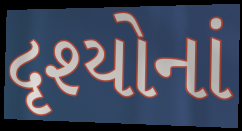
દૃશ્યોનાં